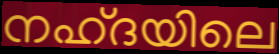
നഹ്ദയിലെ